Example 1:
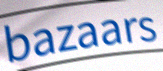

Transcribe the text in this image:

bazaars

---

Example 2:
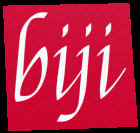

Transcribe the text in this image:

biji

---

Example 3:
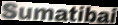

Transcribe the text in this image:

Sumatibai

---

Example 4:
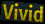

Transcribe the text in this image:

Vivid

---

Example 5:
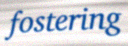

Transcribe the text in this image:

fostering